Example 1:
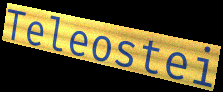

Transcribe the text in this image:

Teleostei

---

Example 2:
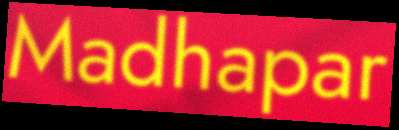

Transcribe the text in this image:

Madhapar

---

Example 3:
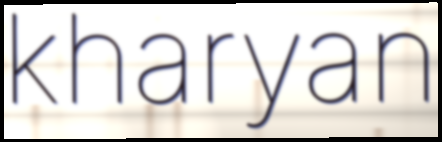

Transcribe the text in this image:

kharyan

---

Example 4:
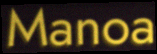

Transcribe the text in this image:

Manoa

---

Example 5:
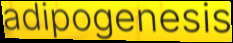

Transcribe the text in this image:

adipogenesis